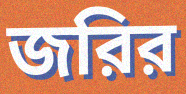
জরির